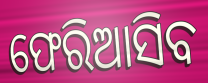
ଫେରିଆସିବ